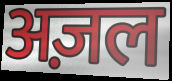
अज़ल